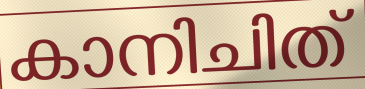
കാനിചിത്